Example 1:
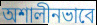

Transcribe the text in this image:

অশালীনভাবে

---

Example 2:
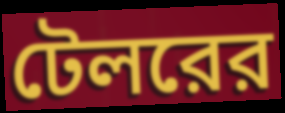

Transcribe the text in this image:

টেলরের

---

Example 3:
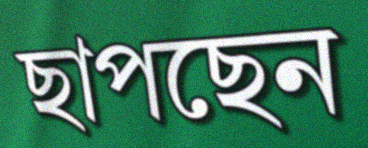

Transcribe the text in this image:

ছাপছেন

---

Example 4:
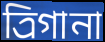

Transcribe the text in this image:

ত্রিগানা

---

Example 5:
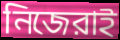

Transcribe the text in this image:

নিজেরাই